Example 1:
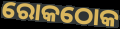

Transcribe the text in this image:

ରୋକଠୋକ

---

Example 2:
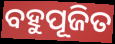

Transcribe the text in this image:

ବହୁପୂଜିତ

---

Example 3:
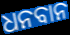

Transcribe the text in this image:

ଧନବାନ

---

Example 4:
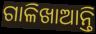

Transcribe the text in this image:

ଗାଳିଖାଆନ୍ତି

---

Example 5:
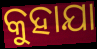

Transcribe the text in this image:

କୁହାଯା